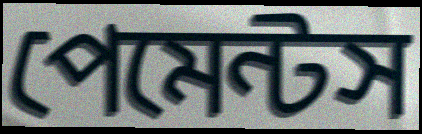
পেমেন্টস